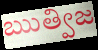
ఋత్విజ